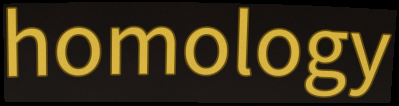
homology